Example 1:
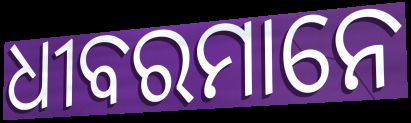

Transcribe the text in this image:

ଧୀବରମାନେ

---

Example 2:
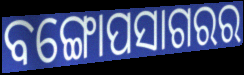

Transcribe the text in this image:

ବଙ୍ଗୋପସାଗରର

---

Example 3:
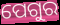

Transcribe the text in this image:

ପେଗୁର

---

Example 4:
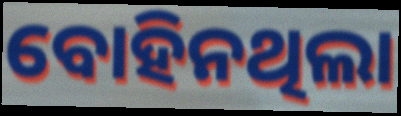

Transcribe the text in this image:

ବୋହିନଥିଲା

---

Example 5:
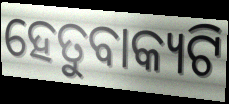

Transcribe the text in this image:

ହେତୁବାକ୍ୟଟି